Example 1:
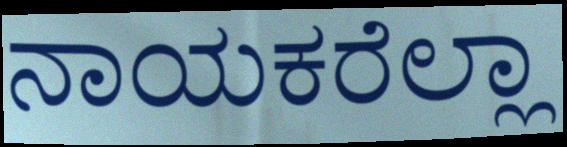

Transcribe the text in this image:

ನಾಯಕರೆಲ್ಲಾ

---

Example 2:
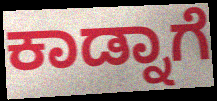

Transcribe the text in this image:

ಕಾಡ್ನಾಗೆ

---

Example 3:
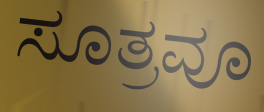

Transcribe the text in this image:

ಸೂತ್ರವೂ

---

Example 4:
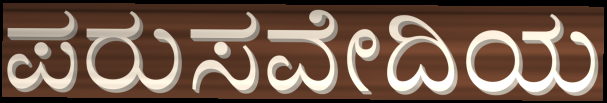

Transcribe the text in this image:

ಪರುಸವೇದಿಯ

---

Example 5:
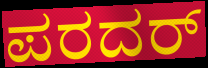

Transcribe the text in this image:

ಪರದರ್